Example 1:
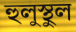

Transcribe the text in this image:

হুলুস্থুল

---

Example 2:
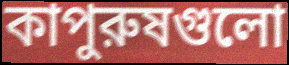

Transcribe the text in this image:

কাপুরুষগুলো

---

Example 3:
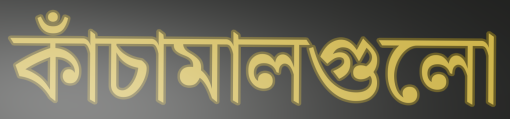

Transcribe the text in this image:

কাঁচামালগুলো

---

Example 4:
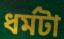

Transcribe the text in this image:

ধর্মটা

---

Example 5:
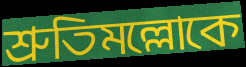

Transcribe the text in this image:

শ্রুতিমল্লোকে